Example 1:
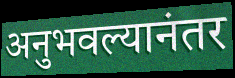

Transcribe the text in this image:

अनुभवल्यानंतर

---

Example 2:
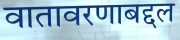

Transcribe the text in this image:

वातावरणाबद्दल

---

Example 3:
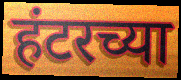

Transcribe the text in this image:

हंटरच्या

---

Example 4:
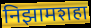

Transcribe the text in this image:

निझामशहा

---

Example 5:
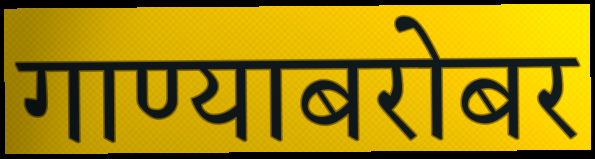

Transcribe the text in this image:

गाण्याबरोबर